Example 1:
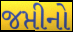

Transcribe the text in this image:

જપ્તીનો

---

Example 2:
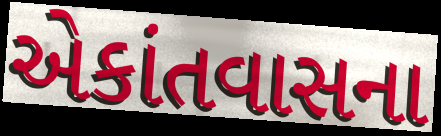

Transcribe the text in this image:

એકાંતવાસના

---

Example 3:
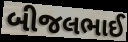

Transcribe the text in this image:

બીજલભાઈ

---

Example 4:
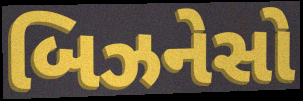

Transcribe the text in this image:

બિઝનેસો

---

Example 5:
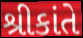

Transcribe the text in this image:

શ્રીકાંતે